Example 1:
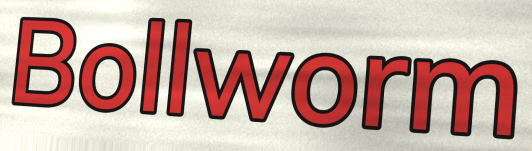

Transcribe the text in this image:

Bollworm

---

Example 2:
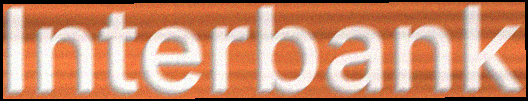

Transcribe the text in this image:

Interbank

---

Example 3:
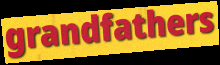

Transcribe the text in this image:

grandfathers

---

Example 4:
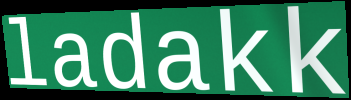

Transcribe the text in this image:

ladakk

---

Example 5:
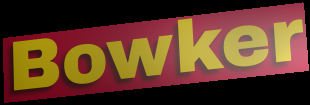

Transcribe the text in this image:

Bowker